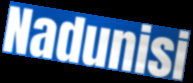
Nadunisi